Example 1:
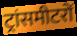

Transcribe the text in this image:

ट्रांसमीटरों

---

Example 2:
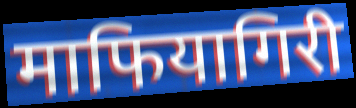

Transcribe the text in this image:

माफियागिरी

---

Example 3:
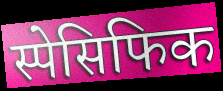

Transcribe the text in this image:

स्पेसिफिक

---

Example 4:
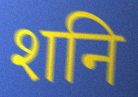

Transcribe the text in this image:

शनि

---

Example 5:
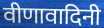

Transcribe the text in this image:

वीणावादिनी